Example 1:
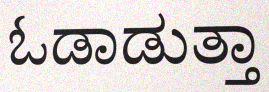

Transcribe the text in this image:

ಓಡಾಡುತ್ತಾ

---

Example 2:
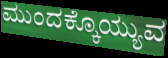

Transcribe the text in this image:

ಮುಂದಕ್ಕೊಯ್ಯುವ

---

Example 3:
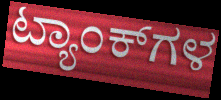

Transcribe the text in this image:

ಟ್ಯಾಂಕ್‌ಗಳ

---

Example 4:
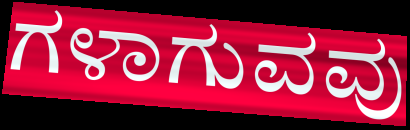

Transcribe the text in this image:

ಗಳಾಗುವವು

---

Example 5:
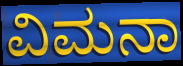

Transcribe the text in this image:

ವಿಮನಾ